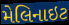
મેલિનાઇટ